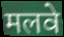
मलवे